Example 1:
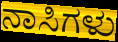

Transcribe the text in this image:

ನಾಸಿಗಳು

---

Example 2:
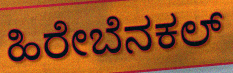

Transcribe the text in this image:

ಹಿರೇಬೆನಕಲ್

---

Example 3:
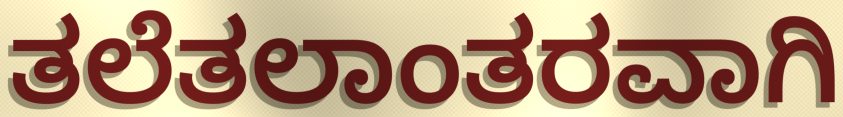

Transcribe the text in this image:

ತಲೆತಲಾಂತರವಾಗಿ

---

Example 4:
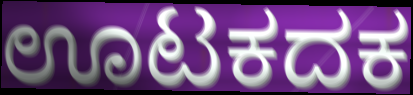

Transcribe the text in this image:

ಊಟಕದಕ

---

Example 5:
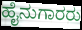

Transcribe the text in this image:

ಹೈನುಗಾರರು